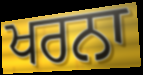
ਖਰਨਾ